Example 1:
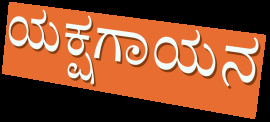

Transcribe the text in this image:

ಯಕ್ಷಗಾಯನ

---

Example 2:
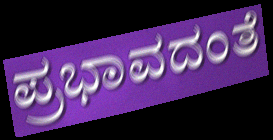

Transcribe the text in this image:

ಪ್ರಭಾವದಂತೆ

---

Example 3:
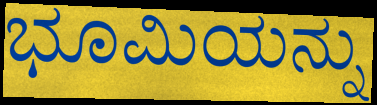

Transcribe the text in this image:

ಭೂಮಿಯನ್ನು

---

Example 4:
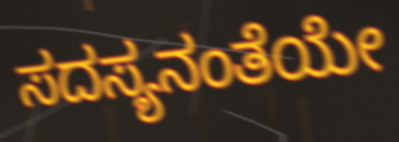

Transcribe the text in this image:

ಸದಸ್ಯನಂತೆಯೇ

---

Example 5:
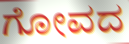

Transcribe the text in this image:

ಗೋವದ